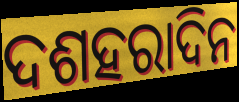
ଦଶହରାଦିନ